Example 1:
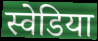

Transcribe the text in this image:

स्वेडिया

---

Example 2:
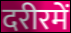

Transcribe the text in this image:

दरीरमें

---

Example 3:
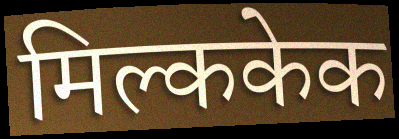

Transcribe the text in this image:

मिल्ककेक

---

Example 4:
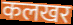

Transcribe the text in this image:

कलखर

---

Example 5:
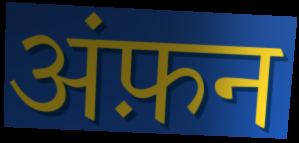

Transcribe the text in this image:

अंफ़न